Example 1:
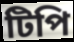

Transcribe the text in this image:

টিপি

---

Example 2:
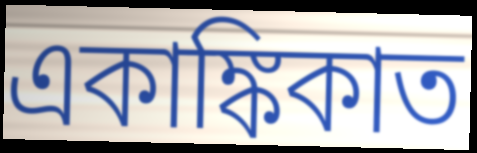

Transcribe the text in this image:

একাঙ্কিকাত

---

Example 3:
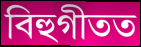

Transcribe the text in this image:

বিহুগীতত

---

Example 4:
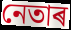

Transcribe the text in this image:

নেতাৰ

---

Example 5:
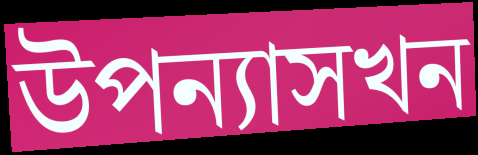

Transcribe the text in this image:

উপন্যাসখন